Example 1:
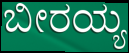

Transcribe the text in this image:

ಬೀರಯ್ಯ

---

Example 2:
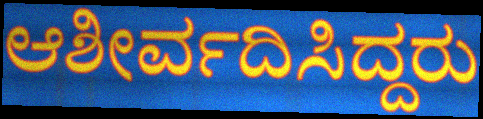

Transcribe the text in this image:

ಆಶೀರ್ವದಿಸಿದ್ದರು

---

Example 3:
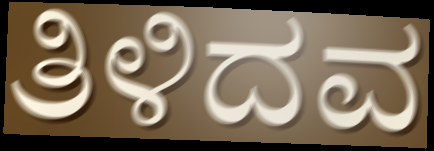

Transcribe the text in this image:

ತಿಳಿದವ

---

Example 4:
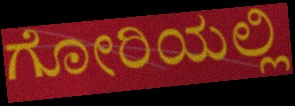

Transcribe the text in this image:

ಗೋರಿಯಲ್ಲಿ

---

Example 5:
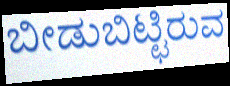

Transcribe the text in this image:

ಬೀಡುಬಿಟ್ಟಿರುವ